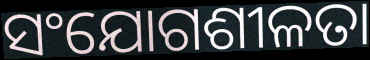
ସଂଯୋଗଶୀଳତା